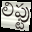
లిఫ్టు